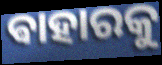
ଵାହାରକୁ